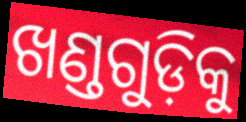
ଖଣ୍ଡଗୁଡ଼ିକୁ